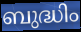
ബുദ്ധിം